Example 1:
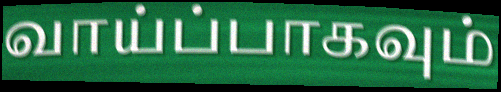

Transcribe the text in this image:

வாய்ப்பாகவும்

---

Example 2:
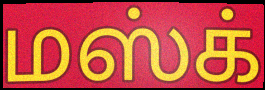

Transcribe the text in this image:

மஸ்க்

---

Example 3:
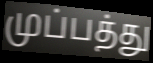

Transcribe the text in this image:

முப்பத்து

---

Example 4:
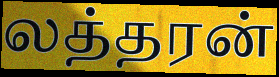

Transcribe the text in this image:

லத்தரன்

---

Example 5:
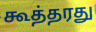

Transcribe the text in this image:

கூத்தரது